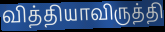
வித்தியாவிருத்தி